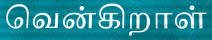
வென்கிறாள்